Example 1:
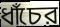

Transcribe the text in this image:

ধাঁচের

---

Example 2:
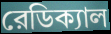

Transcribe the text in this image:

রেডিক্যাল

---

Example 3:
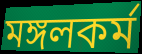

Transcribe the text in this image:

মঙ্গলকর্ম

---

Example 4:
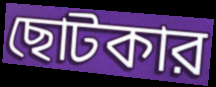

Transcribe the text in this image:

ছোটকার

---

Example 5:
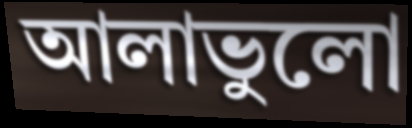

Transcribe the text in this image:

আলাভুলো